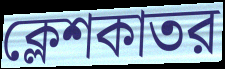
ক্লেশকাতর